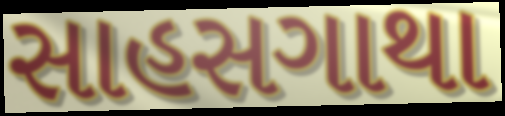
સાહસગાથા